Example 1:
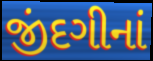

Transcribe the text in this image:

જીંદગીનાં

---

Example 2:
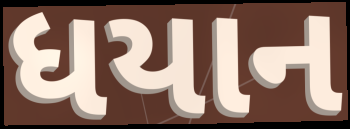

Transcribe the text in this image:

ધયાન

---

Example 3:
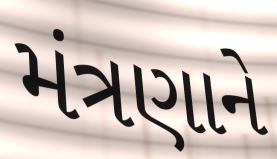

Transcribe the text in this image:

મંત્રણાને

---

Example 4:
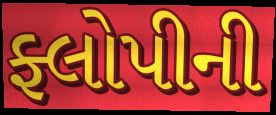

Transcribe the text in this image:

ફ્લોપીની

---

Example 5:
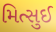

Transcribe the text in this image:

મિત્સુઈ